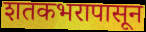
शतकभरापासून